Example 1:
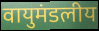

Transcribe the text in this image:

वायुमंडलीय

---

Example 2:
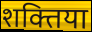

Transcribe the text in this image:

शक्तिया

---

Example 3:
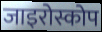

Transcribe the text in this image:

जाइरोस्कोप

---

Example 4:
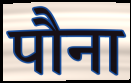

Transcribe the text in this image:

पौना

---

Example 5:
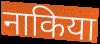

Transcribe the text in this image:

नाकिया